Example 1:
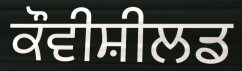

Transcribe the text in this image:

ਕੌਵੀਸ਼ੀਲਡ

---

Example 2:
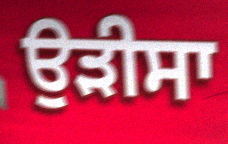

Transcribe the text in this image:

ਉਡ਼ੀਸਾ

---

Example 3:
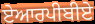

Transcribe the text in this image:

ਏਆਰਪੀਬੀਏ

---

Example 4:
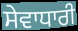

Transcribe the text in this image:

ਸੇਵਾਧਾਰੀ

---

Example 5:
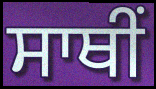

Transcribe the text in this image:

ਸਾਥੀਂ